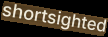
shortsighted